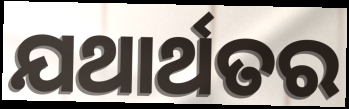
ଯଥାର୍ଥତର